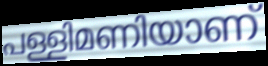
പള്ളിമണിയാണ്